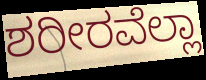
ಶರೀರವೆಲ್ಲಾ